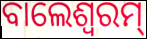
ବାଲେଶ୍ବରମ୍